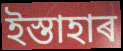
ইস্তাহাৰ